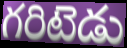
గరిటెడు